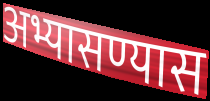
अभ्यासण्यास